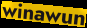
winawun